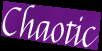
Chaotic